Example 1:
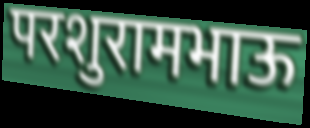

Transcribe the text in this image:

परशुरामभाऊ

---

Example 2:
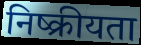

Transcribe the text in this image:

निष्क्रीयता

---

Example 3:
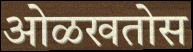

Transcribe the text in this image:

ओळखतोस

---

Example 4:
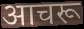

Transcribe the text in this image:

आचरू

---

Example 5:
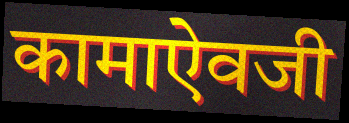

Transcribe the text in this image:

कामाऐवजी